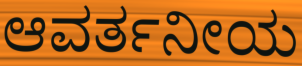
ಆವರ್ತನೀಯ